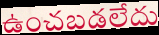
ఉంచబడలేదు